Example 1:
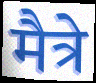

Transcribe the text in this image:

मैत्रे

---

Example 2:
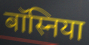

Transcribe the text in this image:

बॉस्निया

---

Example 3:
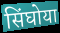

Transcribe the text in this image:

सिंघोया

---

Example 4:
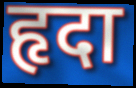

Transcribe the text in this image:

हृदा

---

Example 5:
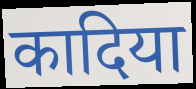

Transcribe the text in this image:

कादिया